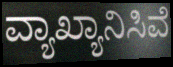
ವ್ಯಾಖ್ಯಾನಿಸಿವೆ